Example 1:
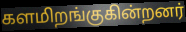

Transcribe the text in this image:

களமிறங்குகின்றனர்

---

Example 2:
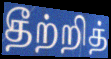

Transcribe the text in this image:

தீற்றித்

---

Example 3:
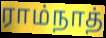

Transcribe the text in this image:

ராம்நாத்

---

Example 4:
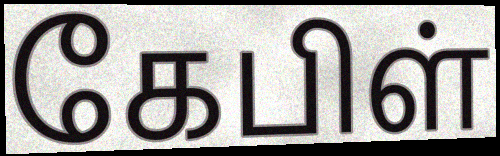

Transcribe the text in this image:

கேபிள்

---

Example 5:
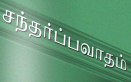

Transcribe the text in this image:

சந்தர்ப்பவாதம்